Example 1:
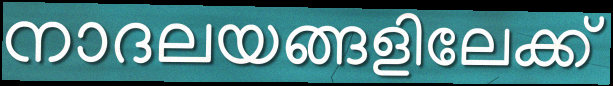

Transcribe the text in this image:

നാദലയങ്ങളിലേക്ക്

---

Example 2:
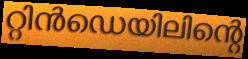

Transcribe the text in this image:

റ്റിൻഡെയിലിന്റെ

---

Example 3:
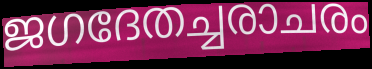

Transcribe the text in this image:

ജഗദേതച്ചരാചരം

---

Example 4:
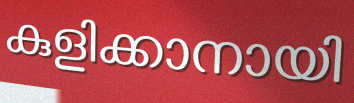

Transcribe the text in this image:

കുളിക്കാനായി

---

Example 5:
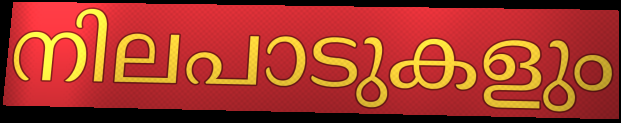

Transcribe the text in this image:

നിലപാടുകളും